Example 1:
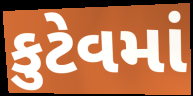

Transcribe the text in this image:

કુટેવમાં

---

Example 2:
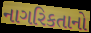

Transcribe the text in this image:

નાગરિકતાનો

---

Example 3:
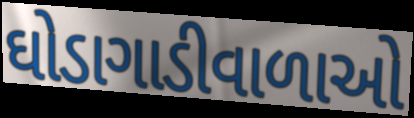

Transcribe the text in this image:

ઘોડાગાડીવાળાઓ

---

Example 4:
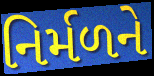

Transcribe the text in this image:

નિર્મળને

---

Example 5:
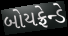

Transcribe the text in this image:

બોયફ્રેન્ડે